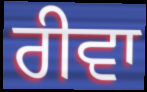
ਰੀਵਾ